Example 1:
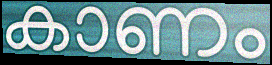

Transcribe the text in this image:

കാണം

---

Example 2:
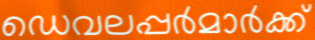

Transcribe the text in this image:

ഡെവലപ്പർമാർക്ക്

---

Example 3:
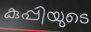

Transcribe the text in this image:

കുപ്പിയുടെ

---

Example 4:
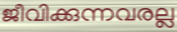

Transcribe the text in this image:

ജീവിക്കുന്നവരല്ല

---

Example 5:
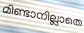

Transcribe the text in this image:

മിണ്ടാനില്ലാതെ